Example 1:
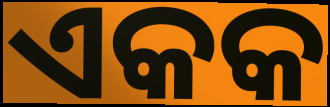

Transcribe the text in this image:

ଏକକ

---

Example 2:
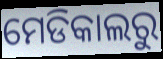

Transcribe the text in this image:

ମେଡିକାଲରୁ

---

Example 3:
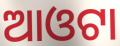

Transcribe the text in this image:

ଆଓଟା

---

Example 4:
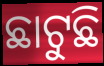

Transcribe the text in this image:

ଛାଟୁଛି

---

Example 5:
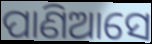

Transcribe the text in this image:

ପାଣିଆସେ